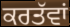
ਕਰਤੱਵਾਂ